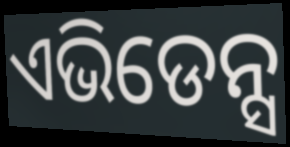
ଏଭିଡେନ୍ସ